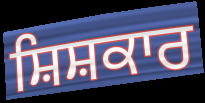
ਸ਼ਿਸ਼ਕਾਰ